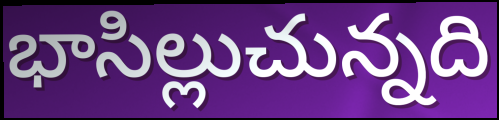
భాసిల్లుచున్నది